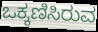
ಒಕ್ಕಣಿಸಿರುವ